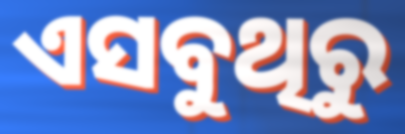
ଏସବୁଥିରୁ